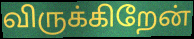
விருக்கிறேன்